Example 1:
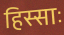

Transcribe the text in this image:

हिस्साः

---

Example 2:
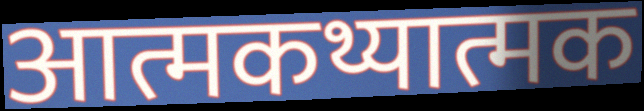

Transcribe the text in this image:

आत्मकथ्यात्मक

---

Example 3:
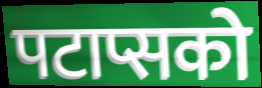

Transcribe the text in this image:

पटाप्सको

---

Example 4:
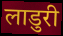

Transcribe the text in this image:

लाडुरी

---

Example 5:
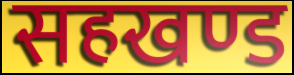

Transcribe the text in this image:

सहखण्ड